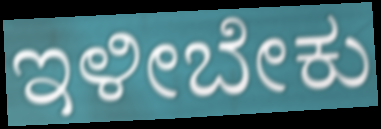
ಇಳೀಬೇಕು